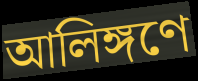
আলিঙ্গণে